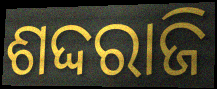
ଶଦ୍ଦରାଜି